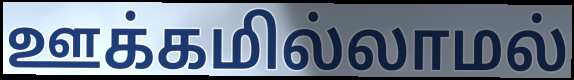
ஊக்கமில்லாமல்